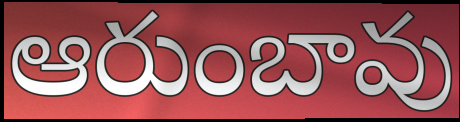
ఆరుంబావు